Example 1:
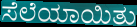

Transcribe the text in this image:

ಸೆಲೆಯಾಯಿತು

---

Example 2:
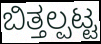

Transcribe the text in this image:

ಬಿತ್ತಲ್ಪಟ್ಟ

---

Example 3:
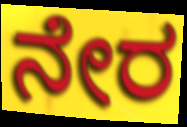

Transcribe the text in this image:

ನೇರ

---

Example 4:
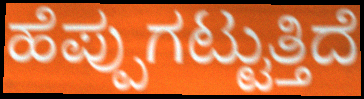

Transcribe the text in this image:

ಹೆಪ್ಪುಗಟ್ಟುತ್ತಿದೆ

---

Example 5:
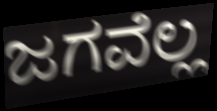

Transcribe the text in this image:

ಜಗವೆಲ್ಲ